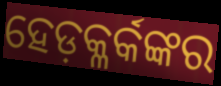
ହେଡ଼କ୍ଳର୍କଙ୍କର